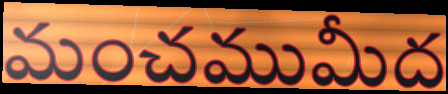
మంచముమీద